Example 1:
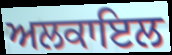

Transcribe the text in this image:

ਅਲਕਾਇਲ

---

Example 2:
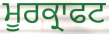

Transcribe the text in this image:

ਮੂਰਕ੍ਰਾਫਟ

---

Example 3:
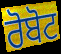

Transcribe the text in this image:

ਰੋਬੋਟ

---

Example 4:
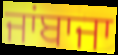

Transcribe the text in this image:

ਜਾਂਬਾਜਾ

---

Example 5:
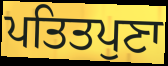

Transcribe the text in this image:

ਪਤਿਤਪੁਣਾ